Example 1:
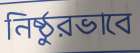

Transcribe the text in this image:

নিষ্ঠুরভাবে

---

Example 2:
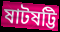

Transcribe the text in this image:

ষাটষট্টি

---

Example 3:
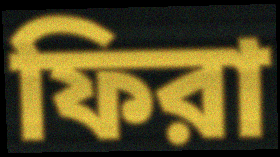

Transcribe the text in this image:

ফিরা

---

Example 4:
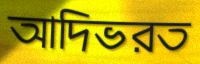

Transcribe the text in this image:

আদিভরত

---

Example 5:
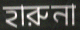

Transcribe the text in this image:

হারুনা